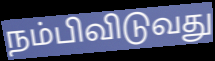
நம்பிவிடுவது